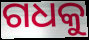
ଗଧକୁ